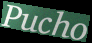
Pucho